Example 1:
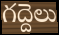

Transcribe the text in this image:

గద్దెలు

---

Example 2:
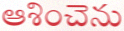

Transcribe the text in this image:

ఆశించెను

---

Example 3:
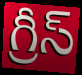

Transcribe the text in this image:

గ్రీస్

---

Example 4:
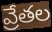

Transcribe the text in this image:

వ్రేతల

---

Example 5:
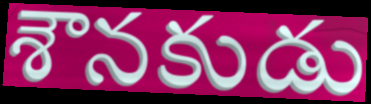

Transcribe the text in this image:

శౌనకుడు